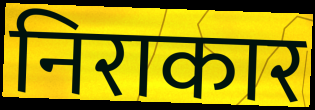
निराकार